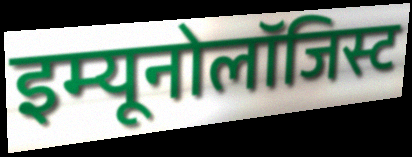
इम्यूनोलॉजिस्ट